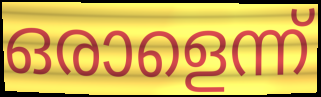
ഒരാളെന്ന്